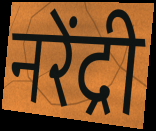
नरेंद्री